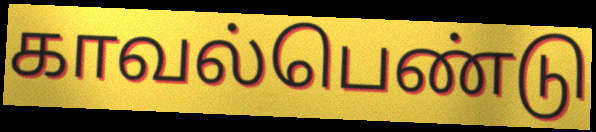
காவல்பெண்டு